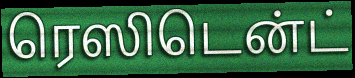
ரெஸிடென்ட்